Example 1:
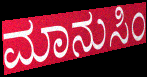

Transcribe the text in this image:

ಮಾನುಸಿಂ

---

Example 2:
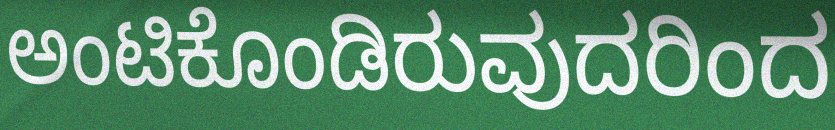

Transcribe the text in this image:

ಅಂಟಿಕೊಂಡಿರುವುದರಿಂದ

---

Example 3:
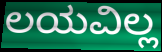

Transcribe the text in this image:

ಲಯವಿಲ್ಲ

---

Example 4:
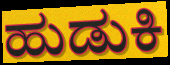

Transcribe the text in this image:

ಹುಡುಕಿ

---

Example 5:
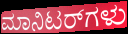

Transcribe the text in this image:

ಮಾನಿಟರ್‌ಗಳು